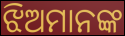
ଝିଅମାନଙ୍କ